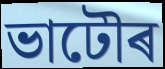
ভাটৌৰ